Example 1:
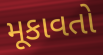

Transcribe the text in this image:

મૂકાવતો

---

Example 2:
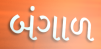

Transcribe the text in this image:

બંગાળ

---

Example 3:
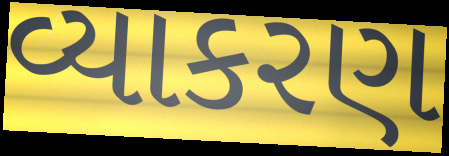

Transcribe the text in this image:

વ્યાકરણ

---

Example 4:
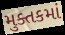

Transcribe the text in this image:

મુક્તકમાં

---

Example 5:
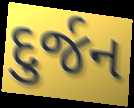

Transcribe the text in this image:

દુર્જન